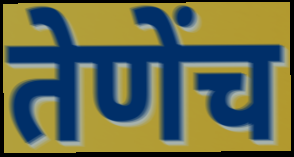
तेणेंच